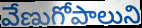
వేణుగోపాలుని